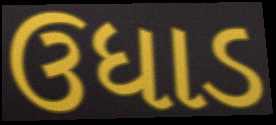
ઉધાડ